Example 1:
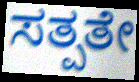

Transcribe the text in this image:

ಸತ್ಪತೇ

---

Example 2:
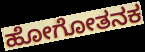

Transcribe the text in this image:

ಹೋಗೋತನಕ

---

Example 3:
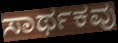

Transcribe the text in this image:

ಸಾರ್ಥಕವು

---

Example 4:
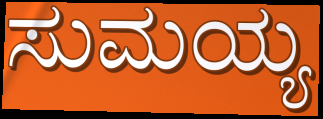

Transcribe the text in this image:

ಸುಮಯ್ಯ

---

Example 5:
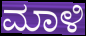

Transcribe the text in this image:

ಮಾಳಿ